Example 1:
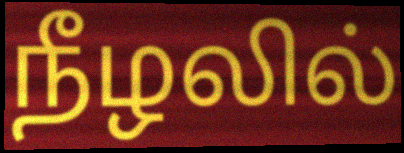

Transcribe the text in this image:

நீழலில்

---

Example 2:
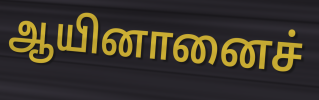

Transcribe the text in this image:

ஆயினானைச்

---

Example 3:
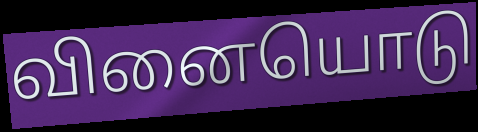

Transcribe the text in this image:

வினையொடு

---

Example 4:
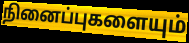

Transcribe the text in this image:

நினைப்புகளையும்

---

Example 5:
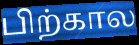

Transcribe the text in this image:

பிற்கால